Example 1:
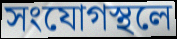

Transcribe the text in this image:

সংযোগস্থলে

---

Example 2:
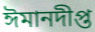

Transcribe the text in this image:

ঈমানদীপ্ত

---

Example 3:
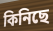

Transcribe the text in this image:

কিনিছে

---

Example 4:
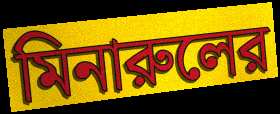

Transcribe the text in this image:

মিনারুলের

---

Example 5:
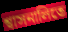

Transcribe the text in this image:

শ্বাসনালিতে